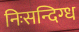
निःसन्दिग्ध